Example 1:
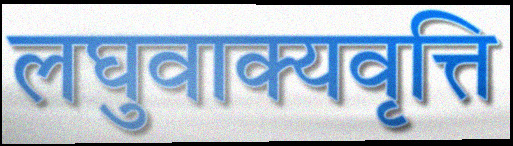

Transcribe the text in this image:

लघुवाक्यवृत्ति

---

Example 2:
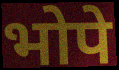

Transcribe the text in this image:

भोपे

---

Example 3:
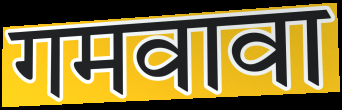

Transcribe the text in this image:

गमवावा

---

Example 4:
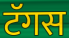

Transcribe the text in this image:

टॅगस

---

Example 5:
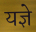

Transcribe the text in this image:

यज्ञे